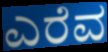
ಎರೆವ